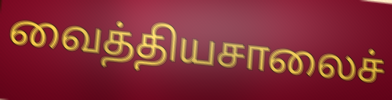
வைத்தியசாலைச்